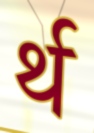
र्थ